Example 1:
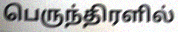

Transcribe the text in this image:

பெருந்திரளில்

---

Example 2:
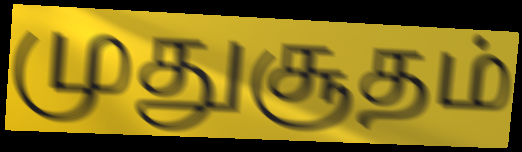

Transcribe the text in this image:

முதுசூதம்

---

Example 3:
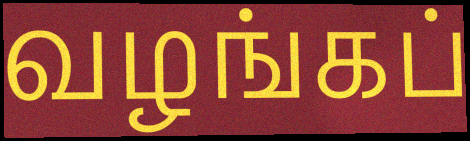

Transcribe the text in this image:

வழங்கப்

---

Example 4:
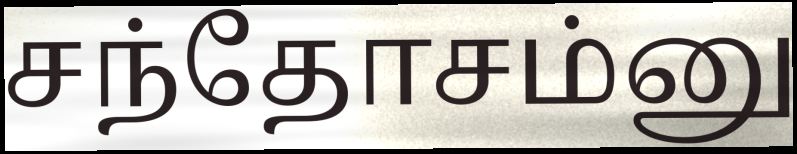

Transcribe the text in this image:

சந்தோசம்னு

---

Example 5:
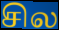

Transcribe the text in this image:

சில